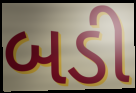
બડી